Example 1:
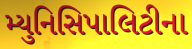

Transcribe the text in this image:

મ્યુનિસિપાલિટીના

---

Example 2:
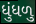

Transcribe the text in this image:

ધુંધળુ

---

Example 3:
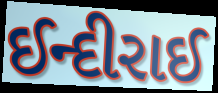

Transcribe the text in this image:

ઈન્દીરાઈ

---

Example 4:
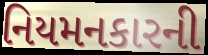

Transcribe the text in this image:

નિયમનકારની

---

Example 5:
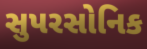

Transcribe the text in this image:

સુપરસોનિક